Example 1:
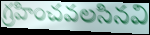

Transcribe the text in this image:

గ్రహించవలసినవి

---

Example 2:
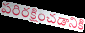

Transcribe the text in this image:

పరిరక్షించడానికి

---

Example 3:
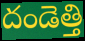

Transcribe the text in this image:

దండెత్తి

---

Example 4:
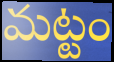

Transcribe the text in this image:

మట్టం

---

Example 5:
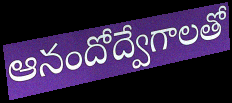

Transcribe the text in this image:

ఆనందోద్వేగాలతో